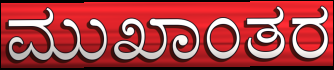
ಮುಖಾಂತರ